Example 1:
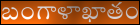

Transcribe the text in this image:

బంగాళాఖాతం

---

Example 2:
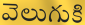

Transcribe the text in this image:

వెలుగుకి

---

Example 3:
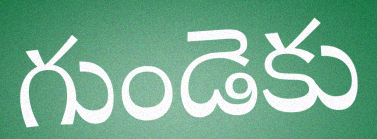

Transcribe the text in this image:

గుండెకు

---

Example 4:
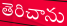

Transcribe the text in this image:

తెరిచాను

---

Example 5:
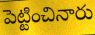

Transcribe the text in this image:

పెట్టించినారు